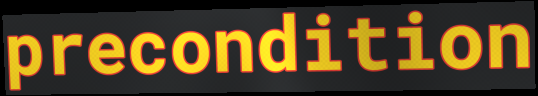
precondition